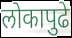
लोकापुढे